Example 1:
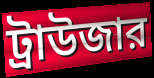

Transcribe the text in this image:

ট্রাউজার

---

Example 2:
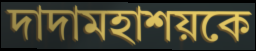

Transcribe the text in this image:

দাদামহাশয়কে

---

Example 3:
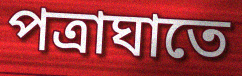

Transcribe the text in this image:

পত্রাঘাতে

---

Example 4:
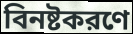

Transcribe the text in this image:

বিনষ্টকরণে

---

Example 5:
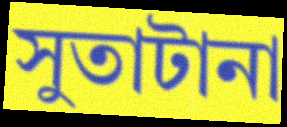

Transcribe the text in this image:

সুতাটানা